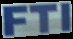
FTI